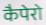
कैपेरो